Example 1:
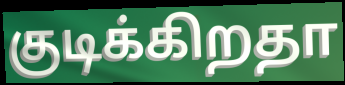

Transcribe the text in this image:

குடிக்கிறதா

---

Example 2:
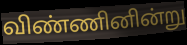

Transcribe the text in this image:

விண்ணினின்று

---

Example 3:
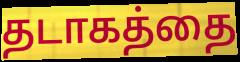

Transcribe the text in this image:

தடாகத்தை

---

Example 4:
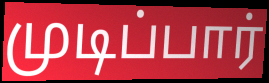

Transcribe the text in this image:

முடிப்பார்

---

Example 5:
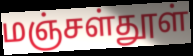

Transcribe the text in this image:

மஞ்சள்தூள்